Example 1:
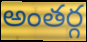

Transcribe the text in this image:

అంతర్గ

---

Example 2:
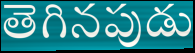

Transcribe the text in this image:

తెగినపుడు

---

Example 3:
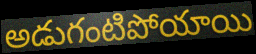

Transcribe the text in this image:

అడుగంటిపోయాయి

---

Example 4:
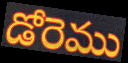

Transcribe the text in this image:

డోరెము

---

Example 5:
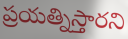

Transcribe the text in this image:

ప్రయత్నిస్తారని